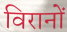
विरानों